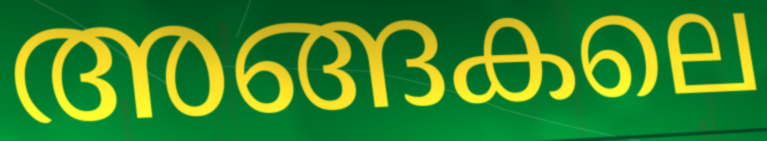
അങ്ങകലെ